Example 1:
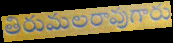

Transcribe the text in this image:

తిరుమలరావుగారు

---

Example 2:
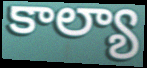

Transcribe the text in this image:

కాల్యా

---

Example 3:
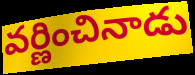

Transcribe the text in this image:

వర్ణించినాడు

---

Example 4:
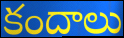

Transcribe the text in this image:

కందాలు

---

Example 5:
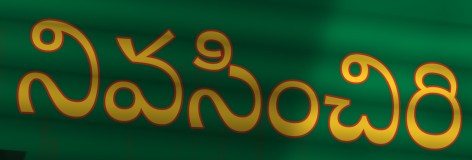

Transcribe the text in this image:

నివసించిరి